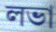
লভা